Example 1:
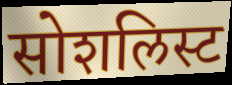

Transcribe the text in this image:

सोशलिस्ट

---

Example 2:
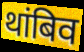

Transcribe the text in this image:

थांबिव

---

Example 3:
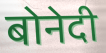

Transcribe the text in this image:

बोनेदी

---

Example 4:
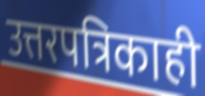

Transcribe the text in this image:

उत्तरपत्रिकाही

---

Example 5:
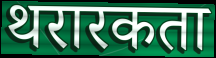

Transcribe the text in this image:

थरारकता